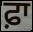
ਫ਼ਾ